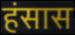
हंसास